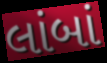
લાંબાં